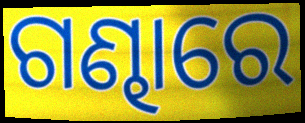
ଗଣ୍ଢାରେ